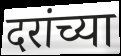
दरांच्या